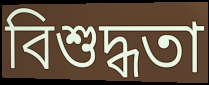
বিশুদ্ধতা